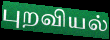
புறவியல்